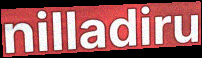
nilladiru